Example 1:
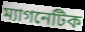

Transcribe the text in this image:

ম্যাগনেটিক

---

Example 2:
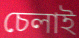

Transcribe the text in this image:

চেলাই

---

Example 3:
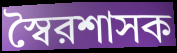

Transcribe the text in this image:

স্বৈরশাসক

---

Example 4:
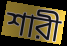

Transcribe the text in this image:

শারী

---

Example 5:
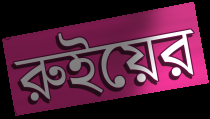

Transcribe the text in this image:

রুইয়ের